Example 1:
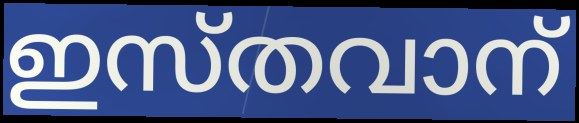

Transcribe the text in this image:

ഇസ്തവാന്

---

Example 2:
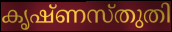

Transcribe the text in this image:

കൃഷ്ണസ്തുതി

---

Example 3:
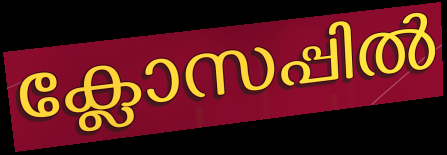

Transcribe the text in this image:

ക്ലോസപ്പിൽ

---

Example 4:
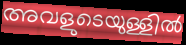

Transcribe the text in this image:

അവളുടെയുള്ളിൽ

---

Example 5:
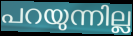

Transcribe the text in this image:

പറയുന്നില്ല